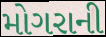
મોગરાની